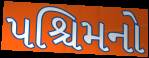
પશ્ચિમનો